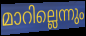
മാറില്ലെന്നും